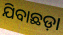
ଯିବାଛଡ଼ା